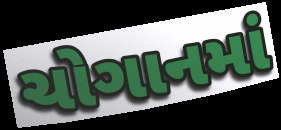
ચોગાનમાં